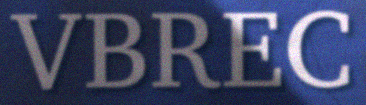
VBREC